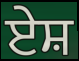
ਏਸ਼